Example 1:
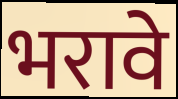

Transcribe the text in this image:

भरावे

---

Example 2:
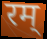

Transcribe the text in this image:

रम्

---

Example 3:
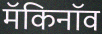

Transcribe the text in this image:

मॅकिनॉव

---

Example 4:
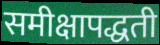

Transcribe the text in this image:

समीक्षापद्धती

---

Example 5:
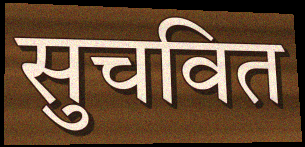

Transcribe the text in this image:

सुचवित